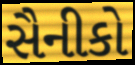
સૈનીકો